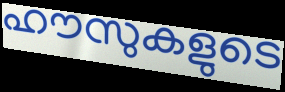
ഹൗസുകളുടെ